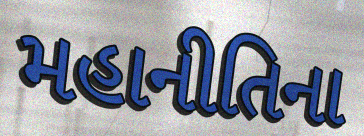
મહાનીતિના